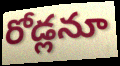
రోడ్లనూ